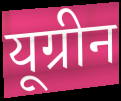
यूग्रीन